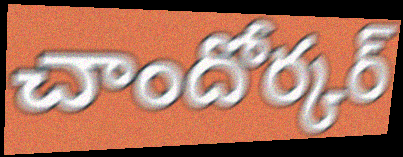
చాందోర్కర్